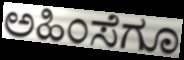
ಅಹಿಂಸೆಗೂ